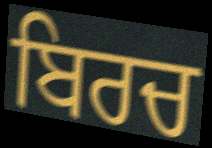
ਬਿਰਚ